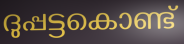
ദുപ്പട്ടകൊണ്ട്